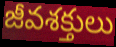
జీవశక్తులు